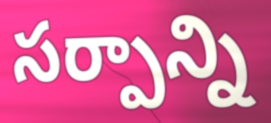
సర్పాన్ని